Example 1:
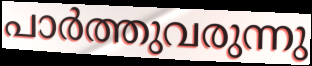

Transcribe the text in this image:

പാർത്തുവരുന്നു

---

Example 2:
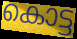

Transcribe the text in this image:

കൊട്ട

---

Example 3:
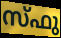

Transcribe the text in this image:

സ്ഫു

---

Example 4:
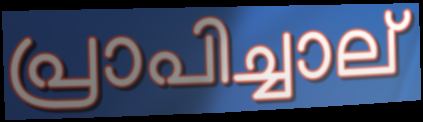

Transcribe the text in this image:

പ്രാപിച്ചാല്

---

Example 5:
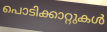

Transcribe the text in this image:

പൊടിക്കാറ്റുകൾ